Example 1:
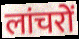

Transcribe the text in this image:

लांचरों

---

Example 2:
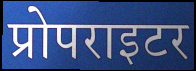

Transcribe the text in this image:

प्रोपराइटर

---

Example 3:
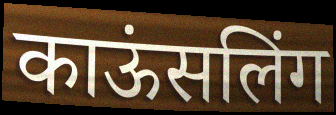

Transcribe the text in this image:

काऊंसलिंग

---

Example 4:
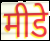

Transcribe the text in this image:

मीडे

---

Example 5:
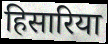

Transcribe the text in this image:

हिसारिया